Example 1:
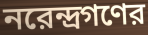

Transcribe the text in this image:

নরেন্দ্রগণের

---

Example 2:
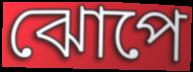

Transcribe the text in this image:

ঝোপে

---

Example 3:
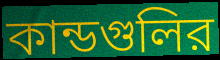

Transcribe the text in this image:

কান্ডগুলির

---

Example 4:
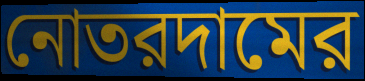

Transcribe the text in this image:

নোতরদামের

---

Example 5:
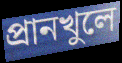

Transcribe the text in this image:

প্রানখুলে